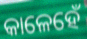
କାଳେହେଁ